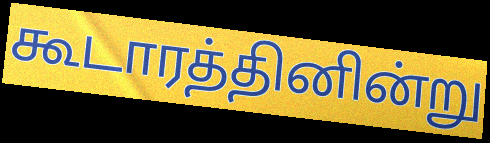
கூடாரத்தினின்று